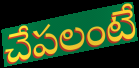
చేపలంటే